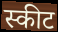
स्कीट